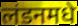
लंडनमधे